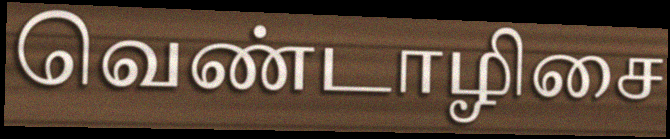
வெண்டாழிசை